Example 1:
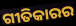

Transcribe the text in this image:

ଗୀତିକାରର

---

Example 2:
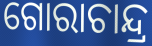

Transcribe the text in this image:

ଗୋରାଚାନ୍ଦ୍ର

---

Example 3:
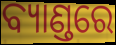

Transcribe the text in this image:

ବ୍ୟାଣ୍ଡରେ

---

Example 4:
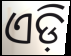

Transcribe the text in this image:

ଏଡ଼ି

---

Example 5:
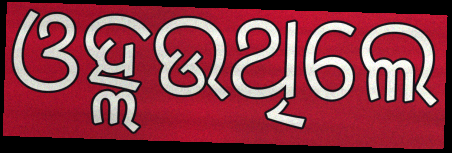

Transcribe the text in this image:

ଓହ୍ଲଉଥିଲେ